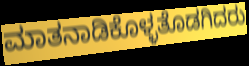
ಮಾತನಾಡಿಕೊಳ್ಳತೊಡಗಿದರು